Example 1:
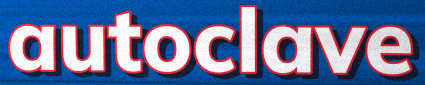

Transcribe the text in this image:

autoclave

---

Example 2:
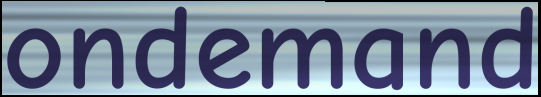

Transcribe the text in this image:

ondemand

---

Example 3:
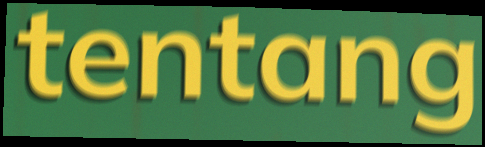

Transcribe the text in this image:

tentang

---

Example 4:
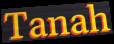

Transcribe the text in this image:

Tanah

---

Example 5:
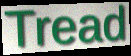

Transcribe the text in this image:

Tread